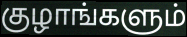
குழாங்களும்